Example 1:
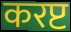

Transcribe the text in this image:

करप्ट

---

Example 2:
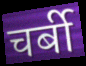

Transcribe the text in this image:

चर्बी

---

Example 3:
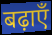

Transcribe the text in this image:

बढ़ाएँ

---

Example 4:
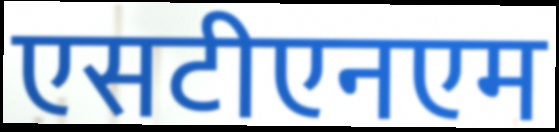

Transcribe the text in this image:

एसटीएनएम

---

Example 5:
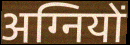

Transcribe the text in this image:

अग्नियों